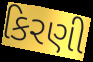
કિરણી